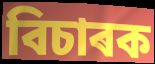
বিচাৰক